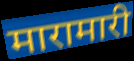
मारामारी